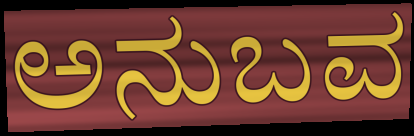
ಅನುಬವ